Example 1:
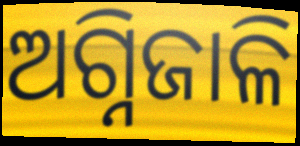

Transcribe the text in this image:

ଅଗ୍ନିଜାଳି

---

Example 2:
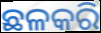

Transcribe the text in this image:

ଛଳକରି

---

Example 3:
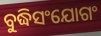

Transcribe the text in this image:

ବୁଦ୍ଧିସଂଯୋଗଂ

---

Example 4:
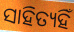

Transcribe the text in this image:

ସାହିତ୍ୟହିଁ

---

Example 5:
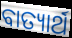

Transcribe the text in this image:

ବାତ୍ୟାର୍ଥ